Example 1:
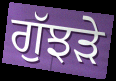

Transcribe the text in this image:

ਗੁੱਝੜੇ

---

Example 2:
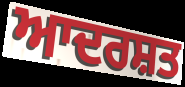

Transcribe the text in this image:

ਆਦਰਸ਼ਤ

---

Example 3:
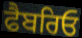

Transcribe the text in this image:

ਫੈਬਰਿਓ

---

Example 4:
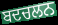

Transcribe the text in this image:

ਬਦਚਲਨ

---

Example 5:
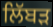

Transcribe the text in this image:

ਲਿੱਬੜ